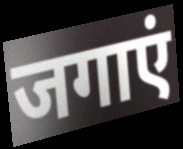
जगाएं